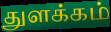
துளக்கம்